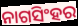
ନାଗସିଂହର